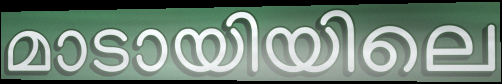
മാടായിയിലെ